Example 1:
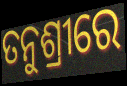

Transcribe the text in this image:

ତନୁଶ୍ରୀରେ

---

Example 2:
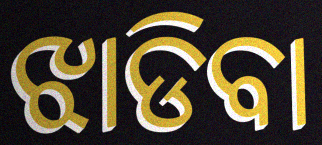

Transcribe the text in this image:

ଝାଡିବା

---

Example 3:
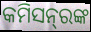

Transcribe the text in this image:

କମିସନ୍‍ରଙ୍କ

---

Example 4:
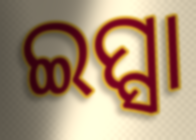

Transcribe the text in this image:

ଇପ୍ସା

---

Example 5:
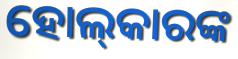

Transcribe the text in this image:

ହୋଲ୍‍କାରଙ୍କ